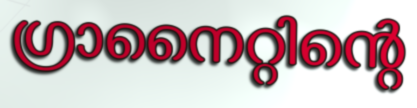
ഗ്രാനൈറ്റിന്റെ